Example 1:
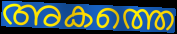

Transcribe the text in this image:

അകത്തെ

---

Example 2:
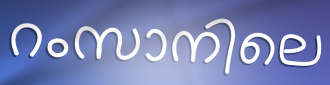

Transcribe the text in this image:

റംസാനിലെ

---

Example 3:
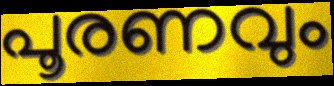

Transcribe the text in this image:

പൂരണവും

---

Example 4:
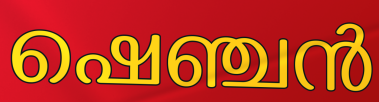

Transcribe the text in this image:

ഷെഞ്ചൻ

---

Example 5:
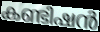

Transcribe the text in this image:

കണ്ടിഷൻ